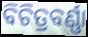
ବିଚିତ୍ରବର୍ଣ୍ଣା